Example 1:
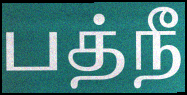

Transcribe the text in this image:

பத்நீ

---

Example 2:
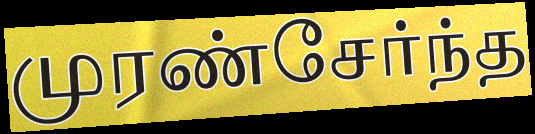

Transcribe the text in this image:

முரண்சேர்ந்த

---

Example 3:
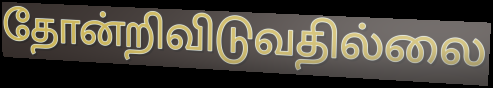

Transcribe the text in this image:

தோன்றிவிடுவதில்லை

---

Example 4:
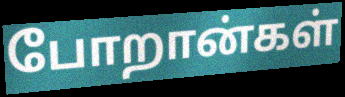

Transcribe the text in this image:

போறான்கள்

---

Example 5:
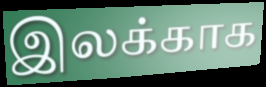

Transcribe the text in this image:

இலக்காக